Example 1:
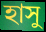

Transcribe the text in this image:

হাসু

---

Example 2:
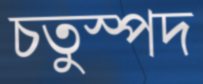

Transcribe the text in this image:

চতুস্পদ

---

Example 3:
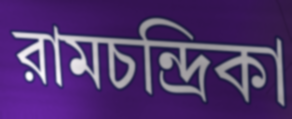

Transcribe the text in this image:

রামচন্দ্রিকা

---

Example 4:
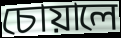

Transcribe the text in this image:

চোয়ালে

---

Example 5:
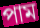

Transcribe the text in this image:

পাম